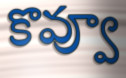
కొవ్వూ